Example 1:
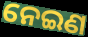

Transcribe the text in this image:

ନେଇଣ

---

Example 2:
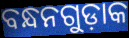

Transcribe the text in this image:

ବନ୍ଧନଗୁଡ଼ାକ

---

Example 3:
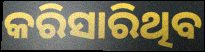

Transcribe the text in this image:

କରିସାରିଥିବ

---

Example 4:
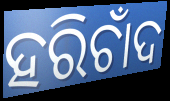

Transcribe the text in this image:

ହରିଚାଁଦ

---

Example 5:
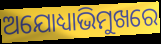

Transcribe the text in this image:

ଅଯୋଧ୍ୟାଭିମୁଖରେ